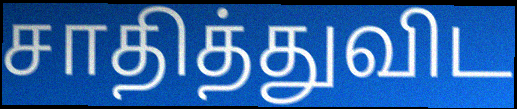
சாதித்துவிட